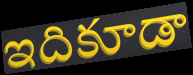
ఇదికూడా